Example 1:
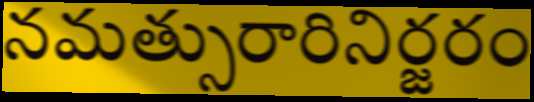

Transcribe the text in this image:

నమత్సురారినిర్జరం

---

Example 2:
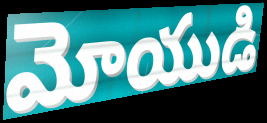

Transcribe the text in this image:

మోయుడి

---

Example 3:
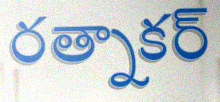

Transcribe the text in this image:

రత్నాకర్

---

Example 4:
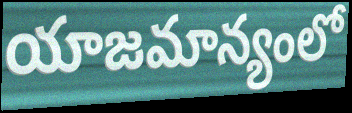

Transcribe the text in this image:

యాజమాన్యంలో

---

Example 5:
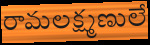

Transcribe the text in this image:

రామలక్ష్మణులే